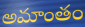
అమాంతం